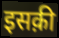
इसक़ी